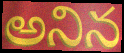
అనిన